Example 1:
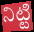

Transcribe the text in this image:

నిట్టి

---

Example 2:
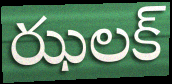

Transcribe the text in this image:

ఝలక్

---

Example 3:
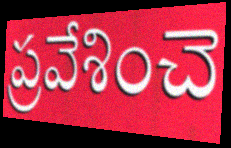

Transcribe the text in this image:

ప్రవేశించె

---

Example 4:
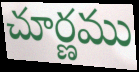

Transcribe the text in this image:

చూర్ణము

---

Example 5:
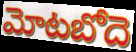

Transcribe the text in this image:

మోటబోదె